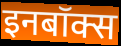
इनबॉक्स